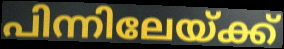
പിന്നിലേയ്ക്ക്